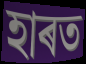
হাৰত